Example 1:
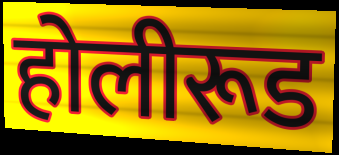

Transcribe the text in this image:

होलीरूड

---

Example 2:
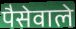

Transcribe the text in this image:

पैसेवाले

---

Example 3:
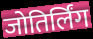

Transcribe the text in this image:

जोतिर्लिंग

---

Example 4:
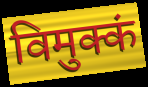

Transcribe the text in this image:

विमुक्कं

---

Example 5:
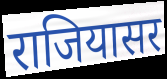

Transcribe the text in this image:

राजियासर